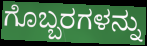
ಗೊಬ್ಬರಗಳನ್ನು